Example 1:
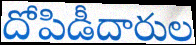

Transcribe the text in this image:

దోపిడీదారుల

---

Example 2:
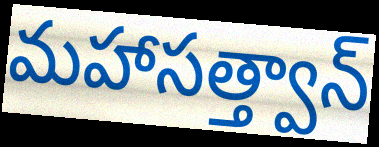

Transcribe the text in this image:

మహాసత్త్వాన్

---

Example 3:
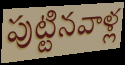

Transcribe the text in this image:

పుట్టినవాళ్ల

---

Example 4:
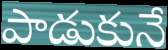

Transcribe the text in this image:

పాడుకునే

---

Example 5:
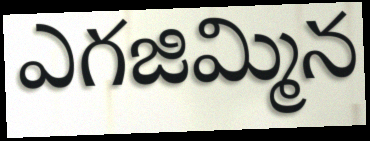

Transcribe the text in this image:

ఎగజిమ్మిన